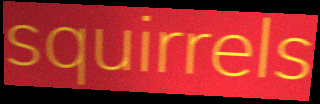
squirrels